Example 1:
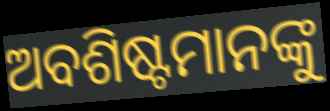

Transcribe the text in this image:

ଅବଶିଷ୍ଟମାନଙ୍କୁ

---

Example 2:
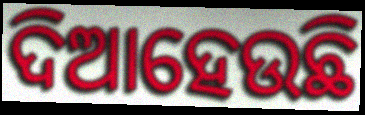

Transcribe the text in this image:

ଦିଆହେଉଛି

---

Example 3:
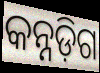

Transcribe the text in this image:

କନ୍ନଡ଼ିଗ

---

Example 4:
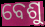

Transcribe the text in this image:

ବେଶୁ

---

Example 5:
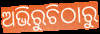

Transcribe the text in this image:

ଅଭିରୁଚିଠାରୁ